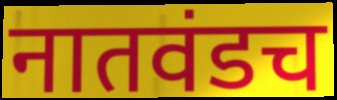
नातवंडच